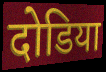
दोडिया